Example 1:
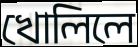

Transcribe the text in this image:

খোলিলে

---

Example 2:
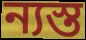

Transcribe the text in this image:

ন্যস্ত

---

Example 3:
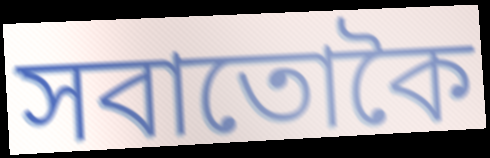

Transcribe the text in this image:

সবাতোকৈ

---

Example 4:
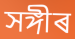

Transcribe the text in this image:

সঙ্গীৰ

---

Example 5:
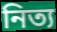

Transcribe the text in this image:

নিত্য